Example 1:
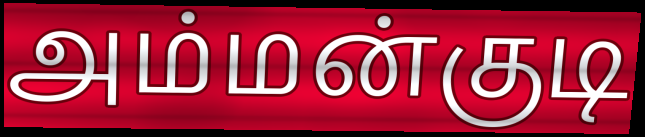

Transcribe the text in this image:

அம்மன்குடி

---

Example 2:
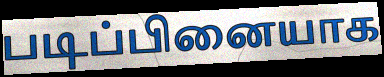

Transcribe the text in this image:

படிப்பினையாக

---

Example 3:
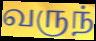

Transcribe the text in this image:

வருந்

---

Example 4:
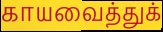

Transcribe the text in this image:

காயவைத்துக்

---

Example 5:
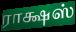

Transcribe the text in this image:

ராக்ஷஸ்